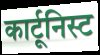
कार्टूनिस्ट